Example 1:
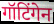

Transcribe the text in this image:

गॉटिंगेन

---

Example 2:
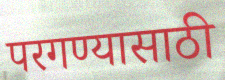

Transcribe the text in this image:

परगण्यासाठी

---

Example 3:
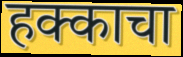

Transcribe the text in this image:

हक्काचा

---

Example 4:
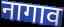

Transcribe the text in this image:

नागाव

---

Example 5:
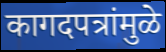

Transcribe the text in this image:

कागदपत्रांमुळे